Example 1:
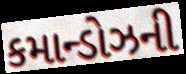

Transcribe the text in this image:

કમાન્ડોઝની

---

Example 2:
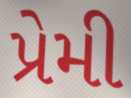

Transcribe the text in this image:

પ્રેમી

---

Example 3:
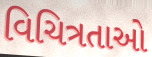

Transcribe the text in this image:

વિચિત્રતાઓ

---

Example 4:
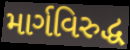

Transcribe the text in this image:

માર્ગવિરુદ્ધ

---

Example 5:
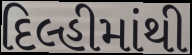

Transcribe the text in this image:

દિલ્હીમાંથી